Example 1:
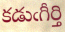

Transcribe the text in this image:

కడుఁగీర్తి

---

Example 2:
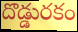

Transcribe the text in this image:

దొడ్డురకం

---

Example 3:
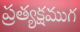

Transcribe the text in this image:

ప్రత్యక్షముగ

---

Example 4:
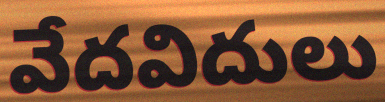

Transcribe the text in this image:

వేదవిదులు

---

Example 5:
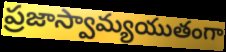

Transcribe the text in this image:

ప్రజాస్వామ్యయుతంగా